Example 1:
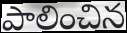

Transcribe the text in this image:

పాలించిన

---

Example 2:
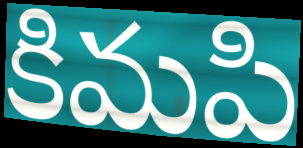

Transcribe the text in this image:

కిమపి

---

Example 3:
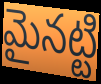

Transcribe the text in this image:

మైనట్టి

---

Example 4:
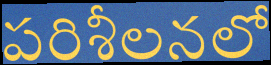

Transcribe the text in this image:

పరిశీలనలో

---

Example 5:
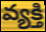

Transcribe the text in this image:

వ్యక్తి